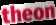
theon